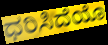
ಧರಿಸಿದೆಯೊ